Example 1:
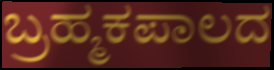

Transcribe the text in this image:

ಬ್ರಹ್ಮಕಪಾಲದ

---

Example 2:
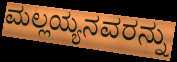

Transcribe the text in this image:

ಮಲ್ಲಯ್ಯನವರನ್ನು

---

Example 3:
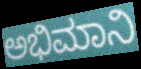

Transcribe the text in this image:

ಅಭಿಮಾನಿ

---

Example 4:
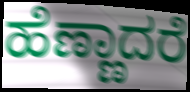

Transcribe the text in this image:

ಹೆಣ್ಣಾದರೆ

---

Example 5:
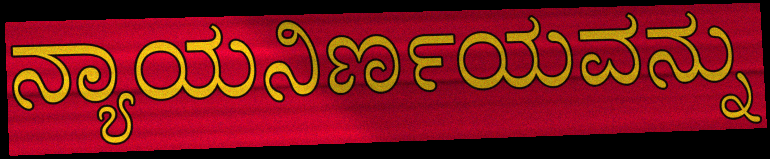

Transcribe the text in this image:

ನ್ಯಾಯನಿರ್ಣಯವನ್ನು